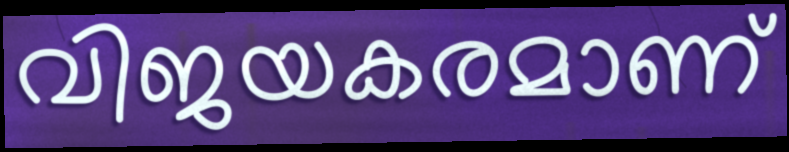
വിജയകരമാണ്